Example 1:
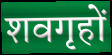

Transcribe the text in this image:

शवगृहों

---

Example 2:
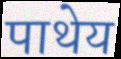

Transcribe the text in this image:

पाथेय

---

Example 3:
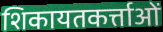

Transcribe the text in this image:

शिकायतकर्त्ताओं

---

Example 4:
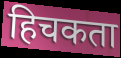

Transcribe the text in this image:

हिचकता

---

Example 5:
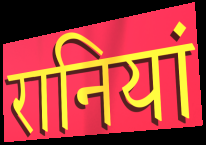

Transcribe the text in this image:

रानियां